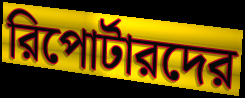
রিপোর্টারদের